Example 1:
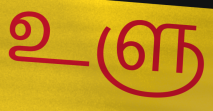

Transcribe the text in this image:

உளு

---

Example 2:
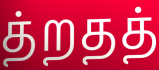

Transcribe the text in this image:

த்றதத்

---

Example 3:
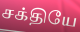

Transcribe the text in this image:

சக்தியே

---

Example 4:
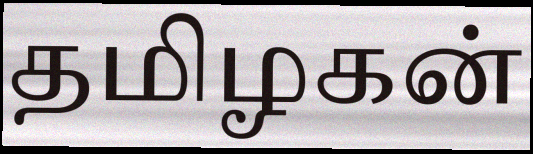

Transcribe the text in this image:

தமிழகன்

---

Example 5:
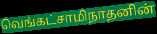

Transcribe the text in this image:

வெங்கட்சாமிநாதனின்